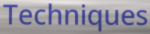
Techniques